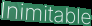
Inimitable